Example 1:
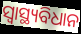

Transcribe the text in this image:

ସ୍ୱାସ୍ଥ୍ୟବିଧାନ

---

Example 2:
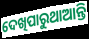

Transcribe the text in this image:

ଦେଖିପାରୁଥାଆନ୍ତି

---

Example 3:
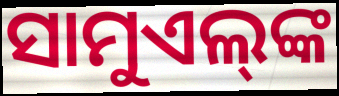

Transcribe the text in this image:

ସାମୁଏଲ୍‌ଙ୍କ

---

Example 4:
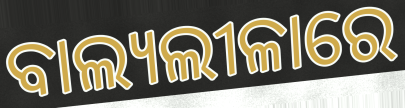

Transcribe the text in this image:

ବାଲ୍ୟଲୀଳାରେ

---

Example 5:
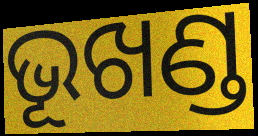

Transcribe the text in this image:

ଭୂଖଣ୍ଡ